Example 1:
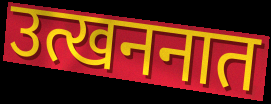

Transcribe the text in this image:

उत्खननात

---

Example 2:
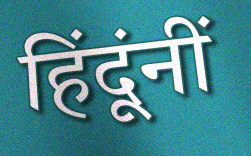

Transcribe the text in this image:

हिंदूंनीं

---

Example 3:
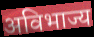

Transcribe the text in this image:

अविभाज्य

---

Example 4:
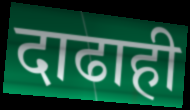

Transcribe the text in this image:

दाढाही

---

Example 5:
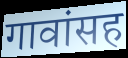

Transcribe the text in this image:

गावांसह